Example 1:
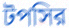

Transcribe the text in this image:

টপসির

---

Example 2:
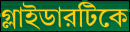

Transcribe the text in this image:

গ্লাইডারটিকে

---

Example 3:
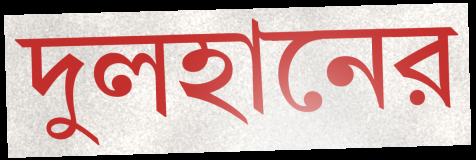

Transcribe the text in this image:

দুলহানের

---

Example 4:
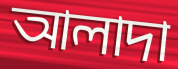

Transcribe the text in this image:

আলাদা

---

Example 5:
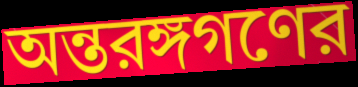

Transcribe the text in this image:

অন্তরঙ্গগণের